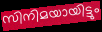
സിനിമയായിട്ടും